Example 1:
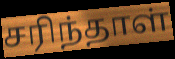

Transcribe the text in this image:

சரிந்தாள்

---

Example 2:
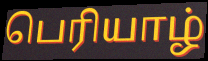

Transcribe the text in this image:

பெரியாழ்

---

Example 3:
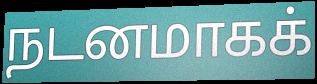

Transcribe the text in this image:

நடனமாகக்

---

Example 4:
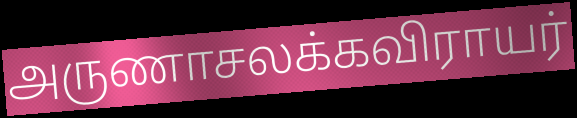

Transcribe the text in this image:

அருணாசலக்கவிராயர்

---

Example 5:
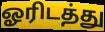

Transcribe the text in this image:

ஓரிடத்து